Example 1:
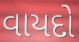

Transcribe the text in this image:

વાયદો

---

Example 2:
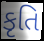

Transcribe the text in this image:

કૃતિ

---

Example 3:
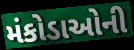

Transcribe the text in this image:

મંકોડાઓની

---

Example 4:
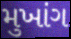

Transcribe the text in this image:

મુખાંગ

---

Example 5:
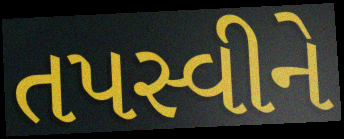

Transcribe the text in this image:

તપસ્વીને